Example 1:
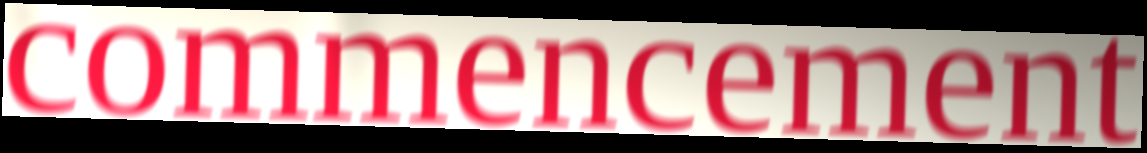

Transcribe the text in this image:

commencement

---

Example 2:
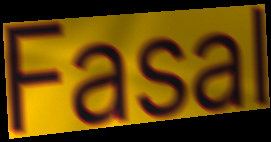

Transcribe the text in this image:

Fasal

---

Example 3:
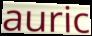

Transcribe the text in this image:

auric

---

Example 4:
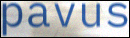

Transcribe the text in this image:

pavus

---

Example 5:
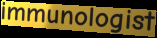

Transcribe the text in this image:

immunologist